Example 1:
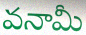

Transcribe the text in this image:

వనామీ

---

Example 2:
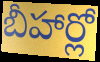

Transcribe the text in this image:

బీహార్లో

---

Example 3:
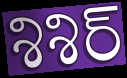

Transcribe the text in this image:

శిశిర్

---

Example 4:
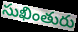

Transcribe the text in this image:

సుఖింతురు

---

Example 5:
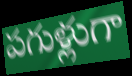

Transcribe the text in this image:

పగుళ్లుగా